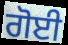
ਗੋਈ